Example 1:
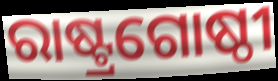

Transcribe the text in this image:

ରାଷ୍ଟ୍ରଗୋଷ୍ଠୀ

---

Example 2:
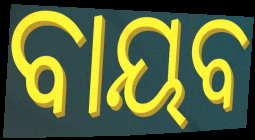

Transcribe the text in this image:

ବାୟବ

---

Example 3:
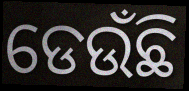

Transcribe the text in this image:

ଡେଉଁଛି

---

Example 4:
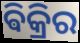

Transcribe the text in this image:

ଵିକ୍ରିର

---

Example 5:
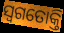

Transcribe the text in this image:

ସ୍ୱଗତୋକ୍ତି